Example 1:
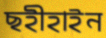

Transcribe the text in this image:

ছহীহাইন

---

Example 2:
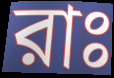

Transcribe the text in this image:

রাঃ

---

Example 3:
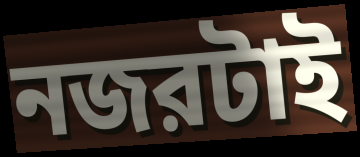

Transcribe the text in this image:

নজরটাই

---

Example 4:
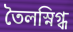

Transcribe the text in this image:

তৈলস্নিগ্ধ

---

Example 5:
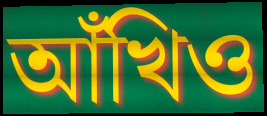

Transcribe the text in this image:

আঁখিও